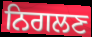
ਨਿਗਲਣ